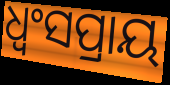
ଧ୍ୱଂସପ୍ରାୟ